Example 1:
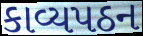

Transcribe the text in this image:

કાવ્યપઠન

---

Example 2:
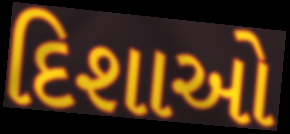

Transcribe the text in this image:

દિશાઓ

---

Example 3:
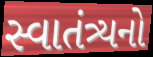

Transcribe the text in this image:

સ્વાતંત્ર્યનો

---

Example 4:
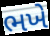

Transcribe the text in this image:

ભખે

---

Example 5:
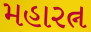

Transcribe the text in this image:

મહારત્ન